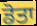
ਡੋਤਾ